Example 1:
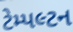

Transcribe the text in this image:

ટેમ્પલ્ટન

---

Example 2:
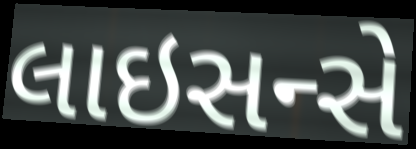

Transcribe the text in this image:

લાઇસન્સે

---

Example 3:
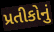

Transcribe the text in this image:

પ્રતીકોનું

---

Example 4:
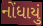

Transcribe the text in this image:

નોંધાયું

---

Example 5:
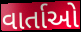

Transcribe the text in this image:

વાર્તાઓ